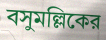
বসুমল্লিকের